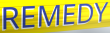
REMEDY